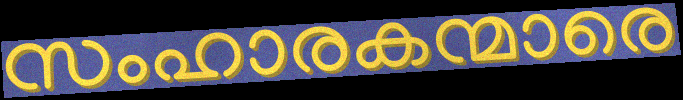
സംഹാരകന്മാരെ